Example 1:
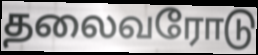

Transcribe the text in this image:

தலைவரோடு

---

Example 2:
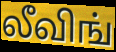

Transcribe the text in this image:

லீவிங்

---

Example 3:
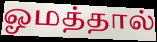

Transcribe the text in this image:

ஓமத்தால்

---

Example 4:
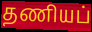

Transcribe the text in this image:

தணியப்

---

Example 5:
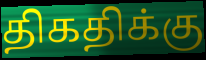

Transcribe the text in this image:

திகதிக்கு